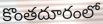
కొంతదూరంలో